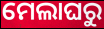
ମେଲାଘରୁ